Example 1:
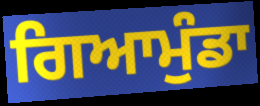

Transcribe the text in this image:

ਗਿਆਮੁੰਡਾ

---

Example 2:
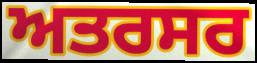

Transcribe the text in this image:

ਅਤਰਸਰ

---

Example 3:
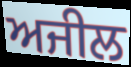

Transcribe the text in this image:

ਅਜੀਲ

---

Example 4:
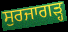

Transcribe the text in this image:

ਸੁਰਜਾਗੜ੍ਹ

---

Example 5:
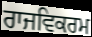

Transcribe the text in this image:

ਰਾਜਵਿਕਰਮ